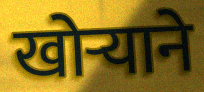
खोऱ्याने